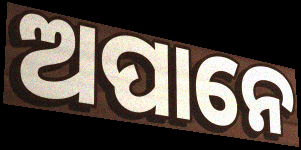
ଅପାନେ